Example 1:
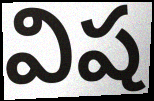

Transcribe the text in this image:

విష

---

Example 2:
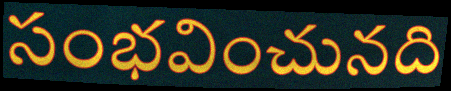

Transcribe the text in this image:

సంభవించునది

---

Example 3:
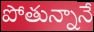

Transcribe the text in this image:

పోతున్నానే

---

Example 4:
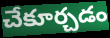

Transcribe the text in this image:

చేకూర్చడం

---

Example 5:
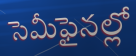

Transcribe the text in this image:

సెమీఫైనల్లో